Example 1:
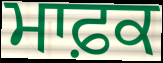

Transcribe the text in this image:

ਮਾਫ਼ਕ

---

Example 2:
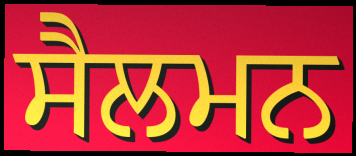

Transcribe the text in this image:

ਸੈਲਮਨ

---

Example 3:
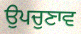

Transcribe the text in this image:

ਉਪਚੁਣਾਵ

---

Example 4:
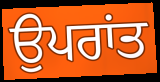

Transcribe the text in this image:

ਉਪਰਾਂਤ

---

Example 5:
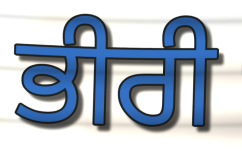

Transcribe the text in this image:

ਭੀਰੀ